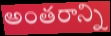
అంతరాన్ని